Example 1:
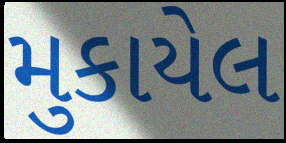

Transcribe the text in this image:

મુકાયેલ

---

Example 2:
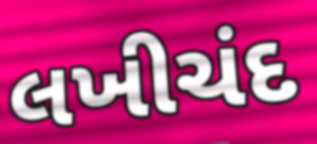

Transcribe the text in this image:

લખીચંદ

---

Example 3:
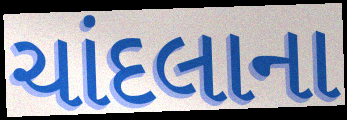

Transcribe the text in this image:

ચાંદલાના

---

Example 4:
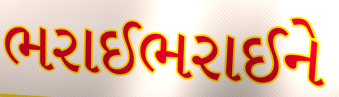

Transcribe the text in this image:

ભરાઈભરાઈને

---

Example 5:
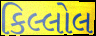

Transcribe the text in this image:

કિલ્લોલ